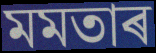
মমতাৰ